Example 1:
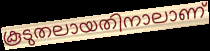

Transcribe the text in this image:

കൂടുതലായതിനാലാണ്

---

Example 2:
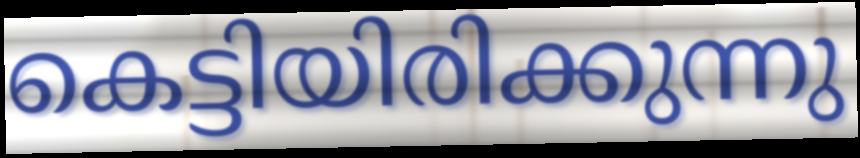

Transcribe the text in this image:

കെട്ടിയിരിക്കുന്നു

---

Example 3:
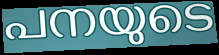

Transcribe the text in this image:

പനയുടെ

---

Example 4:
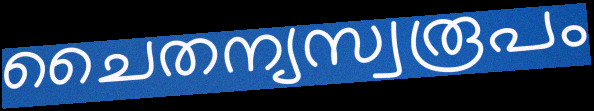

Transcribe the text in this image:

ചൈതന്യസ്വരൂപം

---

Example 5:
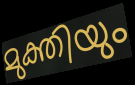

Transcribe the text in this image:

മുക്തിയും